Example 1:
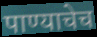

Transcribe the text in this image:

पाण्याचेच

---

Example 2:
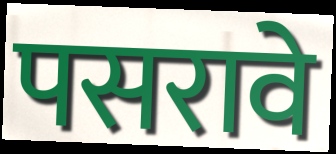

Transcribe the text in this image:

पसरावे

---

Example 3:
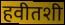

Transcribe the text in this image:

हवीतशी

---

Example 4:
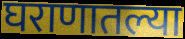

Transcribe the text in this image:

घराणातल्या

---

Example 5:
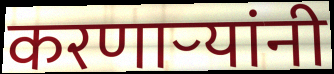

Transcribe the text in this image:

करणाऱ्यांनी